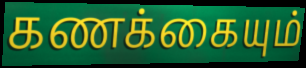
கணக்கையும்